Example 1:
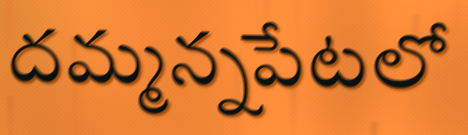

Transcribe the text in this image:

దమ్మన్నపేటలో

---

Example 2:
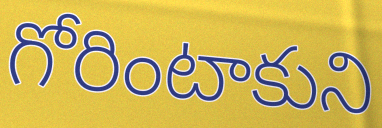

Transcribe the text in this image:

గోరింటాకుని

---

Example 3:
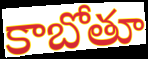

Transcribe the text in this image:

కాబోతూ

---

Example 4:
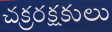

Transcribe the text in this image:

చక్రరక్షకులు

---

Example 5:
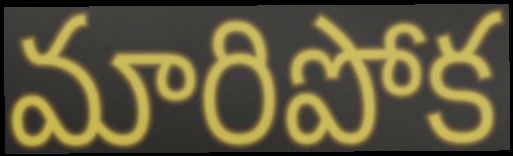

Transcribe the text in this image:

మారిపోక